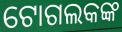
ଟୋଗଲକଙ୍କ